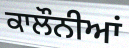
ਕਾਲੌਨੀਆਂ